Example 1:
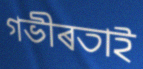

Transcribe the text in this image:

গভীৰতাই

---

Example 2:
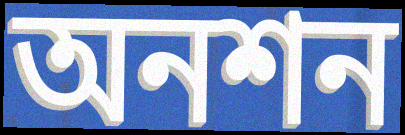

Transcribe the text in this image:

অনশন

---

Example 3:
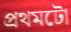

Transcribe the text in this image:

প্ৰথমটো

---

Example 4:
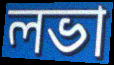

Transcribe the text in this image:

লভা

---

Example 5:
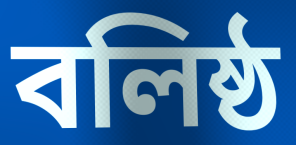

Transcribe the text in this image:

বলিষ্ঠ